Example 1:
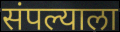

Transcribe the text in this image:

संपल्याला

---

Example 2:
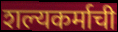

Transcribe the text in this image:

शल्यकर्माची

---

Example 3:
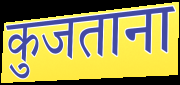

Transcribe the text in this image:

कुजताना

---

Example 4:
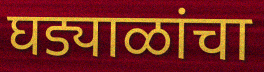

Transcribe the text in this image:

घड्याळांचा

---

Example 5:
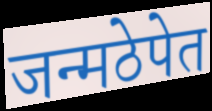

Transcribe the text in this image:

जन्मठेपेत